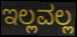
ಇಲ್ಲವಲ್ಲ